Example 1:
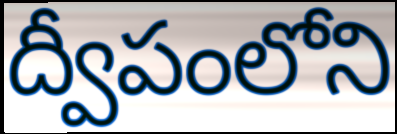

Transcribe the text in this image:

ద్వీపంలోని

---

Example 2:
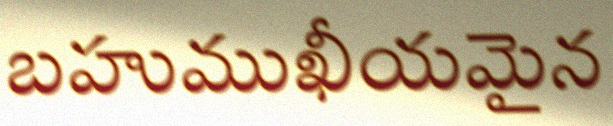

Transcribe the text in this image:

బహుముఖీయమైన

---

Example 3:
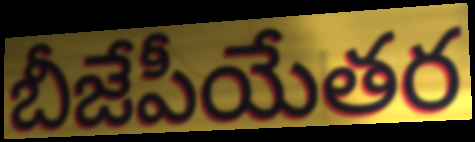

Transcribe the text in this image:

బీజేపీయేతర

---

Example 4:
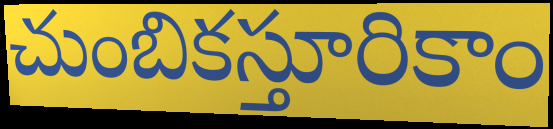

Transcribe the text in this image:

చుంబికస్తూరికాం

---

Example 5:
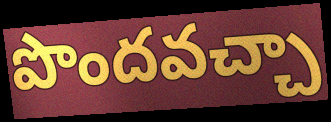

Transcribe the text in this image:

పొందవచ్చా